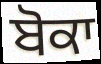
ਬੋਕਾ